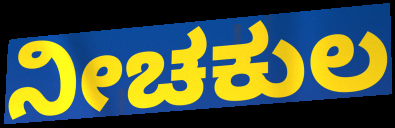
ನೀಚಕುಲ